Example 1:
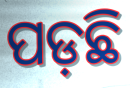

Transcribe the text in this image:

ପଡ଼ଛି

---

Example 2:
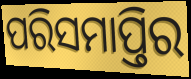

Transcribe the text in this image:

ପରିସମାପ୍ତିର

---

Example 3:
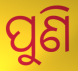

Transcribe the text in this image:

ପୁଣି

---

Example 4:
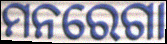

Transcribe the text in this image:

ମନରେଗା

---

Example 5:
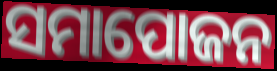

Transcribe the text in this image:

ସମାପୋଜନ